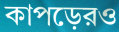
কাপড়েরও